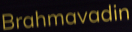
Brahmavadin